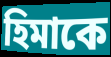
হিমাকে